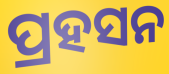
ପ୍ରହସନ